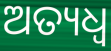
ଅତ୍ୟଧ୍ୱ